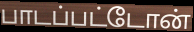
பாடப்பட்டோன்